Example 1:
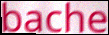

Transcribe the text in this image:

bache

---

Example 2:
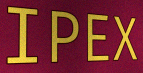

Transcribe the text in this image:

IPEX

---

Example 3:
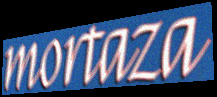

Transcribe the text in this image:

mortaza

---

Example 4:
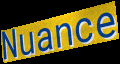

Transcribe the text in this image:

Nuance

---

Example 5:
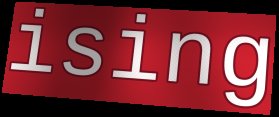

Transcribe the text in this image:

ising